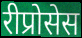
रीप्रोसेस